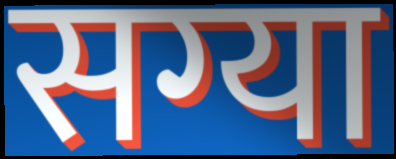
सग्या